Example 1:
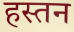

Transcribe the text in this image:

हस्तन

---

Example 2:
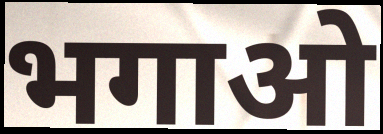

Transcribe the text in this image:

भगाओ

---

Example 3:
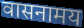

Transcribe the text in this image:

वासनामय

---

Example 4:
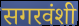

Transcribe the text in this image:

सगरवंशी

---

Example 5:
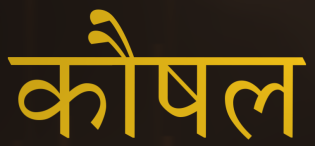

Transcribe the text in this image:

कौषल